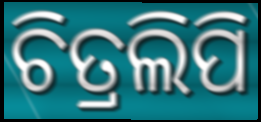
ଚିତ୍ରଲିପି